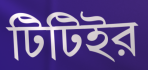
টিটিইর